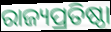
ରାଜ୍ୟପ୍ରତିଷ୍ଠା